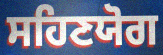
ਸਹਿਣਯੋਗ